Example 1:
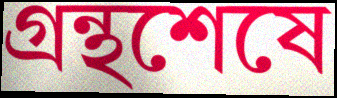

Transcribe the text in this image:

গ্রন্থশেষে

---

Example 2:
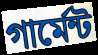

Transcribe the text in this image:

গার্মেন্ট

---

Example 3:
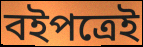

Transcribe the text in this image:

বইপত্রেই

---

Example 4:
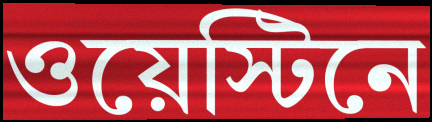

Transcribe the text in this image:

ওয়েস্টিনে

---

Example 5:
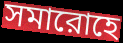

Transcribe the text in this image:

সমারোহে